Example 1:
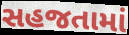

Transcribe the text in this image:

સહજતામાં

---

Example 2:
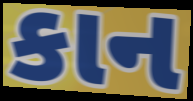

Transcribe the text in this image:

કાન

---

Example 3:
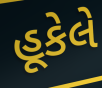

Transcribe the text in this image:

હૂકેલે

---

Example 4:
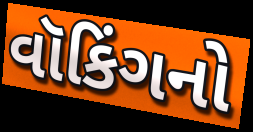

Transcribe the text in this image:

વૉકિંગનો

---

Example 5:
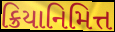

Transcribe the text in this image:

ક્રિયાનિમિત્ત